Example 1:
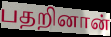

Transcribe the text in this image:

பதறினான்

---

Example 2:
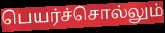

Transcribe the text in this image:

பெயர்ச்சொல்லும்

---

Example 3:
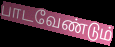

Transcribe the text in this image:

பாடவேண்டும்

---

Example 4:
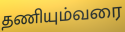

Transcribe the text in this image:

தணியும்வரை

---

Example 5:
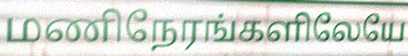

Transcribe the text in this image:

மணிநேரங்களிலேயே